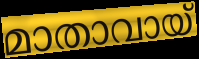
മാതാവായ്